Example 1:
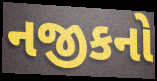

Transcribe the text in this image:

નજીકનો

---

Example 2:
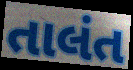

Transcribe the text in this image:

તાલંત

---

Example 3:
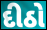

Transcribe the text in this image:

દીઠો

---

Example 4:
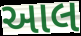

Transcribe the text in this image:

આલ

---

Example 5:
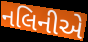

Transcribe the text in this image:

નલિનીએ